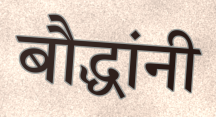
बौद्धांनी